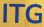
ITG